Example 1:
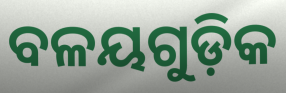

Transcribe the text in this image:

ବଳୟଗୁଡ଼ିକ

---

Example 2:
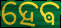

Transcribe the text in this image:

ହେଵ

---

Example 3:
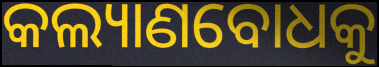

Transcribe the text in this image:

କଲ୍ୟାଣବୋଧକୁ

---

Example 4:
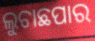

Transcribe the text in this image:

ଲୁଚାଛପାର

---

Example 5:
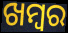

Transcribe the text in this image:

ଖମ୍ୱର